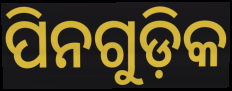
ପିନଗୁଡ଼ିକ